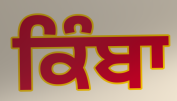
ਕਿੰਬਾ